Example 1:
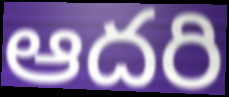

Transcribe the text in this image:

ఆదరి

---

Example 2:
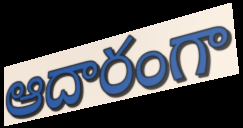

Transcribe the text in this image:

ఆదారంగా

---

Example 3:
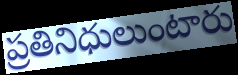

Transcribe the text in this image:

ప్రతినిధులుంటారు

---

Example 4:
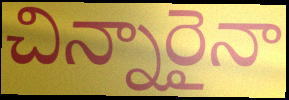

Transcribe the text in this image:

చిన్నారైనా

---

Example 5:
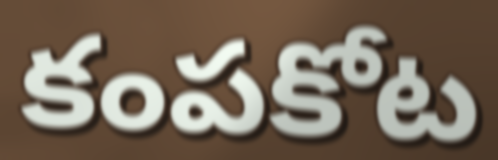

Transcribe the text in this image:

కంపకోట